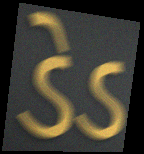
ડેડ